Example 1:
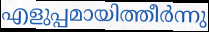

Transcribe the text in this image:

എളുപ്പമായിത്തീർന്നു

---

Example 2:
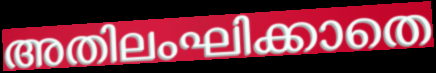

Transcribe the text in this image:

അതിലംഘിക്കാതെ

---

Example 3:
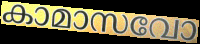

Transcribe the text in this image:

കാമാസവോ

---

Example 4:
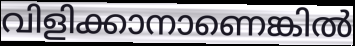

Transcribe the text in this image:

വിളിക്കാനാണെങ്കിൽ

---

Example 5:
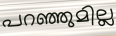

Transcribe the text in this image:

പറഞ്ഞുമില്ല